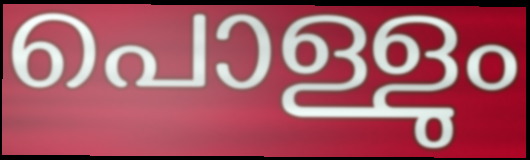
പൊള്ളും